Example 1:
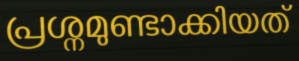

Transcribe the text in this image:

പ്രശ്നമുണ്ടാക്കിയത്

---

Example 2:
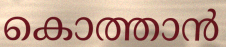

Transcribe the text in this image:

കൊത്താൻ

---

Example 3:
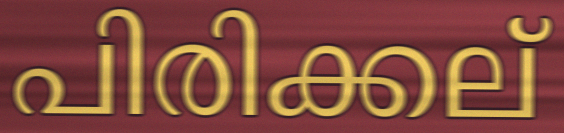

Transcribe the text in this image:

പിരിക്കല്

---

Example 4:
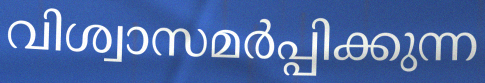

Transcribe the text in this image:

വിശ്വാസമർപ്പിക്കുന്ന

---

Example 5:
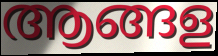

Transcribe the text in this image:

ആങ്ങള